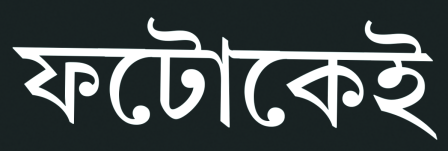
ফটোকেই